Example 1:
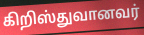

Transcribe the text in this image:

கிறிஸ்துவானவர்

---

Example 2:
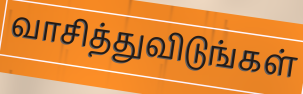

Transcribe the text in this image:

வாசித்துவிடுங்கள்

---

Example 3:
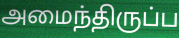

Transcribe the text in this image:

அமைந்திருப்ப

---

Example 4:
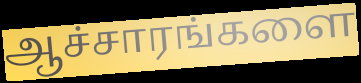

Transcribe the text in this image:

ஆச்சாரங்களை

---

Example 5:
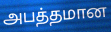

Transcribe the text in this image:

அபத்தமான